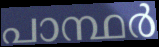
പാന്ഥർ